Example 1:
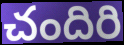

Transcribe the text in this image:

చందిరి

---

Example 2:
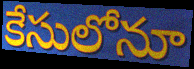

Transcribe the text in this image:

కేసులోనూ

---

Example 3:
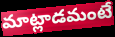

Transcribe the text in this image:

మాట్లాడమంటే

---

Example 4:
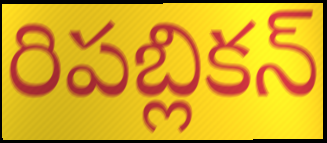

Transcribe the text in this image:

రిపబ్లికన్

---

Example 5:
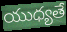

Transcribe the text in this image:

యుధ్యతే